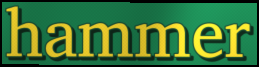
hammer